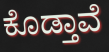
ಕೊಡ್ತಾವೆ